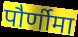
पौर्णीमा